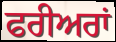
ਫਰੀਅਰਾਂ